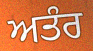
ਅਤੰਰ